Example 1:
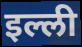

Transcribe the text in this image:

इल्ली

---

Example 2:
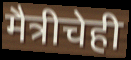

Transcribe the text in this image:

मैत्रीचेही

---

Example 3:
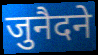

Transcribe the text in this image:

जुनैदने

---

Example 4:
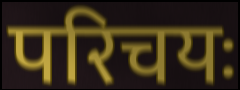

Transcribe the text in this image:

परिचयः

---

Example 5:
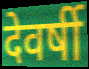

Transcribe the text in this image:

देवर्षी